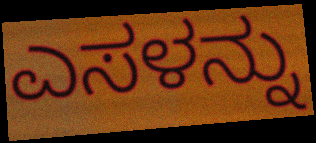
ಎಸಳನ್ನು